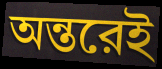
অন্তরেই